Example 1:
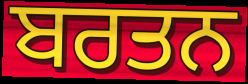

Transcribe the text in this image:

ਬਰਤਨ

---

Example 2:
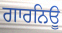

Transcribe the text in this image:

ਗਾਰਨਿਊ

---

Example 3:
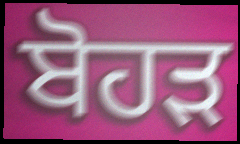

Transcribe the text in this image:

ਬੋਹੜ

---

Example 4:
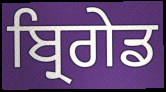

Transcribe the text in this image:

ਬ੍ਰਿਗੇਡ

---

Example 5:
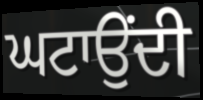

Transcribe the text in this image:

ਘਟਾਉਂਦੀ